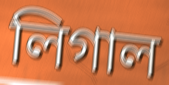
লিগাল